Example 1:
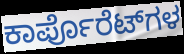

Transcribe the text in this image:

ಕಾರ್ಪೊರೆಟ್‌ಗಳ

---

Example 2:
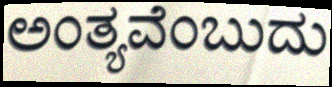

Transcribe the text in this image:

ಅಂತ್ಯವೆಂಬುದು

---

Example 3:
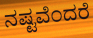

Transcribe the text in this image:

ನಷ್ಟವೆಂದರೆ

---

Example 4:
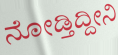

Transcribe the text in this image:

ನೋಡ್ತಿದ್ದೀನಿ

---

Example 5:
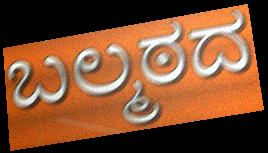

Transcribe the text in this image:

ಬಲ್ಮಠದ